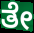
ತೇ